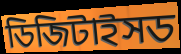
ডিজিটাইসড